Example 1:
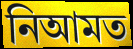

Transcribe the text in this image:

নিআমত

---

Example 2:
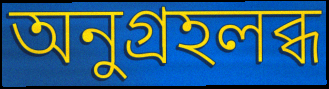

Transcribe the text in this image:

অনুগ্রহলব্ধ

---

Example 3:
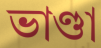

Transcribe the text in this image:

ভাণ্ডা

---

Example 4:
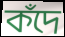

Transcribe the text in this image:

কঁদে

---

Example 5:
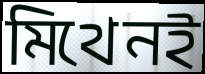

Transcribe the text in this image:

মিথেনই